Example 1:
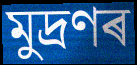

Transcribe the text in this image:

মুদ্ৰণৰ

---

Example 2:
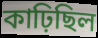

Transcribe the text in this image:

কাঢ়িছিল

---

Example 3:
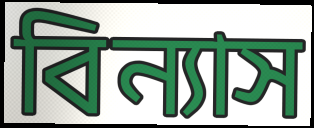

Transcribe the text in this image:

বিন্যাস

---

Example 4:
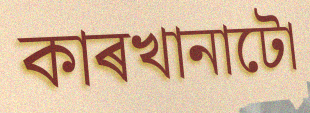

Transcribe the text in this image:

কাৰখানাটো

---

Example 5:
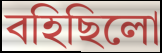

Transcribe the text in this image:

বহিছিলো